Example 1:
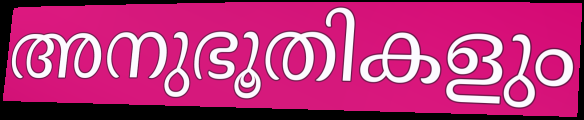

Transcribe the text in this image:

അനുഭൂതികളും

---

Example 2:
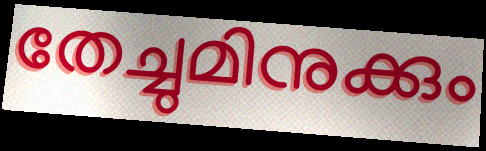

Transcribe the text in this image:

തേച്ചുമിനുക്കും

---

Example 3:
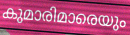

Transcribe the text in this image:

കുമാരിമാരെയും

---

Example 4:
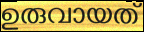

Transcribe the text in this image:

ഉരുവായത്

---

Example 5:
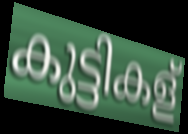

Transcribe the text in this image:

കുട്ടികള്